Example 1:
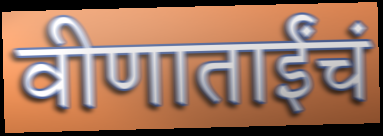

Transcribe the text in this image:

वीणाताईंचं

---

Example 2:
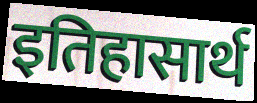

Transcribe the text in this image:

इतिहासार्थ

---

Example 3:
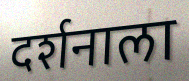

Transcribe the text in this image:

दर्शनाला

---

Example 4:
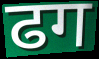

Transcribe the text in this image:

ढग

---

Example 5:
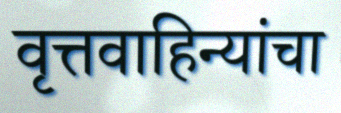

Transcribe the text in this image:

वृत्तवाहिन्यांचा